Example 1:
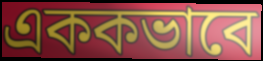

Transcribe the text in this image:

এককভাবে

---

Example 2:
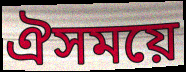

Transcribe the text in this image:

ঐসময়ে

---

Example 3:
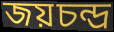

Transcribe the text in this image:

জয়চন্দ্র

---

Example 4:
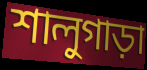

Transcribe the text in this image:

শালুগাড়া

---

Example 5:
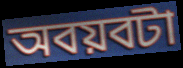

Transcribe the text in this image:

অবয়বটা